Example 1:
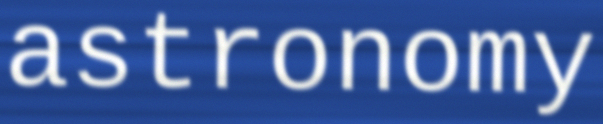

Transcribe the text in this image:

astronomy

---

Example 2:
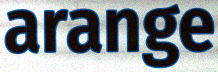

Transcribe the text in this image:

arange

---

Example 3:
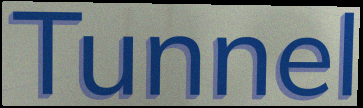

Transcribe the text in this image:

Tunnel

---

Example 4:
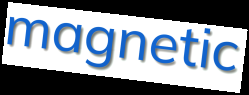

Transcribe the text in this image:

magnetic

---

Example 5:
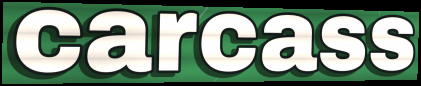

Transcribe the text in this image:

carcass